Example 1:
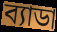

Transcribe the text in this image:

ব্যাডা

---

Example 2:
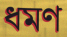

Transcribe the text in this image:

ধমণ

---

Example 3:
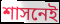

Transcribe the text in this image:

শাসনেই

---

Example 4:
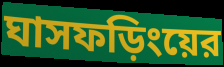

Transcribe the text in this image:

ঘাসফড়িংয়ের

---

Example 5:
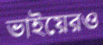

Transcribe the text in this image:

ভাইয়েরও